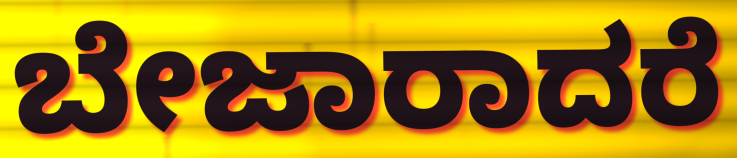
ಬೇಜಾರಾದರೆ